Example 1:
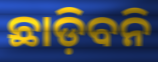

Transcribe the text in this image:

ଛାଡ଼ିବନି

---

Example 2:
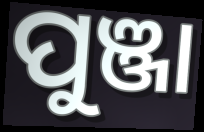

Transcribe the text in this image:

ପୁଞ୍ଜା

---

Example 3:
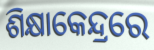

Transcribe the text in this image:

ଶିକ୍ଷାକେନ୍ଦ୍ରରେ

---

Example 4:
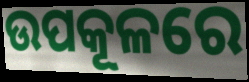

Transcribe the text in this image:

ଉପକୂଳରେ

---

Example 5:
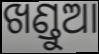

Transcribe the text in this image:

ଖଣ୍ଡୁଆ